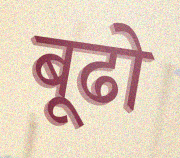
बूढो